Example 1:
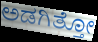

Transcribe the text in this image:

ಅಡಗಿತ್ತೋ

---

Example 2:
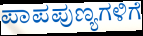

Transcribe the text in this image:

ಪಾಪಪುಣ್ಯಗಳಿಗೆ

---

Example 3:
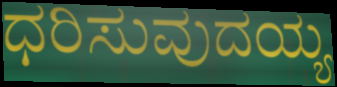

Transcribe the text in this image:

ಧರಿಸುವುದಯ್ಯ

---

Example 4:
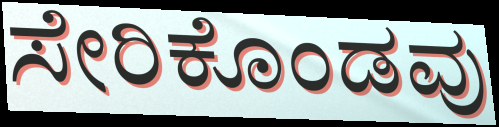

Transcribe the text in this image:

ಸೇರಿಕೊಂಡವು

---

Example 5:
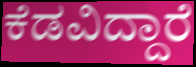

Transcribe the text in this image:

ಕೆಡವಿದ್ದಾರೆ